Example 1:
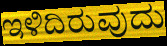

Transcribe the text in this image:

ಇಳಿದಿರುವುದು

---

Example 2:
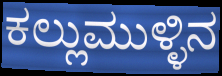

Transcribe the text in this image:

ಕಲ್ಲುಮುಳ್ಳಿನ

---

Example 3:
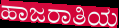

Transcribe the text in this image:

ಹಾಜರಾತಿಯ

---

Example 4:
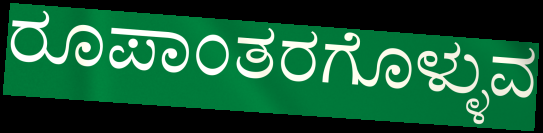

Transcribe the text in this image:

ರೂಪಾಂತರಗೊಳ್ಳುವ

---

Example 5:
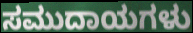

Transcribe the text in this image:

ಸಮುದಾಯಗಳು